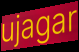
ujagar